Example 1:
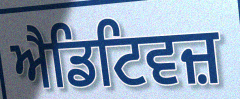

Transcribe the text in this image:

ਐਡਿਟਿਵਜ਼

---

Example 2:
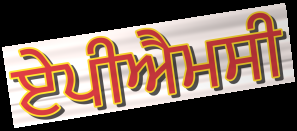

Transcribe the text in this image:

ਏਪੀਐਮਸੀ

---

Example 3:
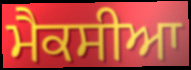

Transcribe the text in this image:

ਮੈਕਸੀਆ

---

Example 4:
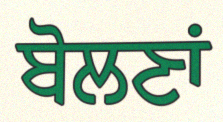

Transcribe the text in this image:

ਬੋਲਣਾਂ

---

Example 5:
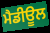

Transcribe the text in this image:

ਮੈਡੀਊਲ